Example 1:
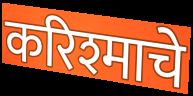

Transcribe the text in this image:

करिश्माचे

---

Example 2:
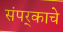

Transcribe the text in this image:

संपर्काचे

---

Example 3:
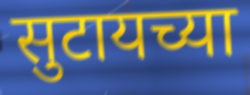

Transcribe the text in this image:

सुटायच्या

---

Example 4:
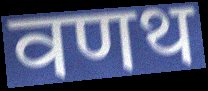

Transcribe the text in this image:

वणथ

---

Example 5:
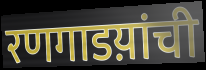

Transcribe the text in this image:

रणगाडय़ांची